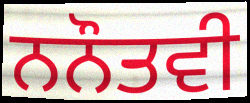
ਨਨੌਤਵੀ